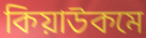
কিয়াউকমে